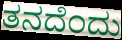
ತನದೆಂದು